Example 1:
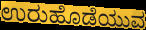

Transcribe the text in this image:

ಉರುಹೊಡೆಯುವ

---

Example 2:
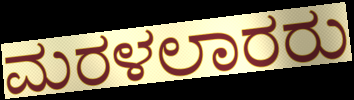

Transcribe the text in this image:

ಮರಳಲಾರರು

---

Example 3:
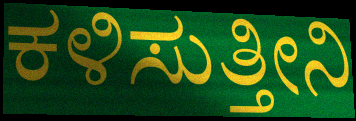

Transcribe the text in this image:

ಕಳಿಸುತ್ತೀನಿ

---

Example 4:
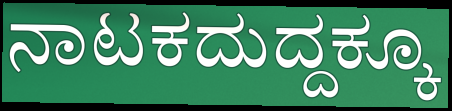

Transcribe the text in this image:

ನಾಟಕದುದ್ದಕ್ಕೂ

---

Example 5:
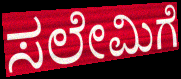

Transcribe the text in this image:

ಸಲೇಮಿಗೆ